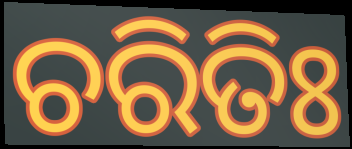
ଚରିତିଃ